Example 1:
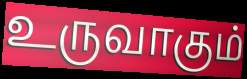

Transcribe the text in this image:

உருவாகும்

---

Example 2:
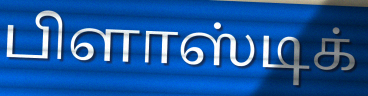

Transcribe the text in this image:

பிளாஸ்டிக்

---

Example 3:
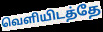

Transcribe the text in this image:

வெளியிடத்தே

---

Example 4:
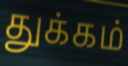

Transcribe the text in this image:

துக்கம்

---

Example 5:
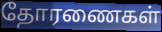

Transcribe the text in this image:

தோரணைகள்